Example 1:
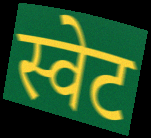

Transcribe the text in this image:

स्वेट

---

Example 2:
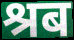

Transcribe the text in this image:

श्रब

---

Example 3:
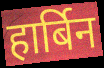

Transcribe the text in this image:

हार्बिन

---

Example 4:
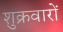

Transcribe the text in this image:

शुक्रवारों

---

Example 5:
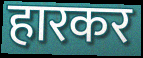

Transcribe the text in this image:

हारकर